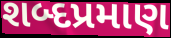
શબ્દપ્રમાણ